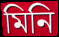
মিনি